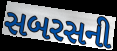
સબરસની